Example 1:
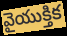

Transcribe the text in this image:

వైయుక్తిక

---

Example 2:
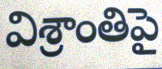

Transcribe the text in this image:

విశ్రాంతిపై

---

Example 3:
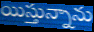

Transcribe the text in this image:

యిస్తున్నాను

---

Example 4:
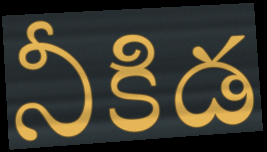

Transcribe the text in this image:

నీకిడ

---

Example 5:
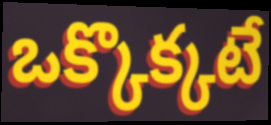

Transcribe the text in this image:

ఒక్కొక్కటే